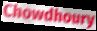
Chowdhoury